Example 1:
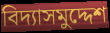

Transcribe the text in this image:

বিদ্যাসমুদ্দেশ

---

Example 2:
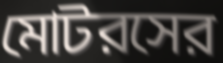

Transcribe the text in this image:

মোটরসের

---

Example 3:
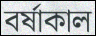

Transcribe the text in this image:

বর্ষাকাল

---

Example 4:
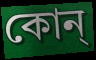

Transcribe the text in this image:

কোন্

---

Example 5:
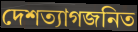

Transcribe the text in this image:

দেশত্যাগজনিত